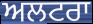
ਅਲਟਰਾ